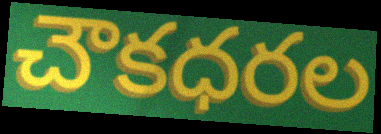
చౌకధరల